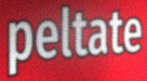
peltate